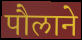
पौलाने